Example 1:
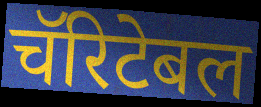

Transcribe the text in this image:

चॅरिटेबल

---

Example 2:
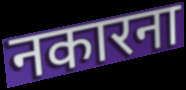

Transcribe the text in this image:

नकारना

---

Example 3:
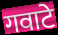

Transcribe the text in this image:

गवाटे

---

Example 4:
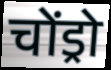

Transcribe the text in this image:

चोंड्रो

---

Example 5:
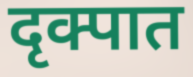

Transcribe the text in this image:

दृक्पात